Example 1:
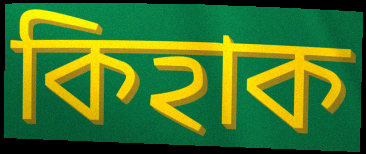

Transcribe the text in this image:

কিহাক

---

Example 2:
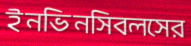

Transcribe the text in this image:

ইনভিনসিবলসের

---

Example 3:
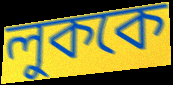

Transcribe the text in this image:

লুককে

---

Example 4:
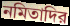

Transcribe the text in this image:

নমিতাদির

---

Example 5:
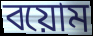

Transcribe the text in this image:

বয়োম